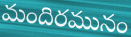
మందిరమునం